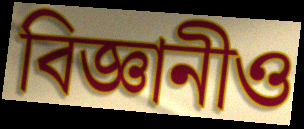
বিজ্ঞানীও